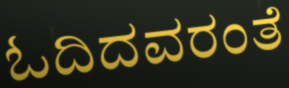
ಓದಿದವರಂತೆ